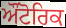
ਔਂਟੋਰਿਕ